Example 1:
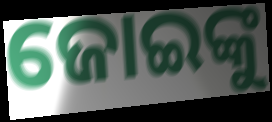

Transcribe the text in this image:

ଜୋଇଙ୍କୁ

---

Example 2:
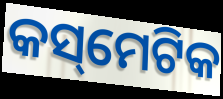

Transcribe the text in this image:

କସ୍‌ମେଟିକ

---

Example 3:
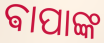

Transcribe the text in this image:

ଵାପାଙ୍କ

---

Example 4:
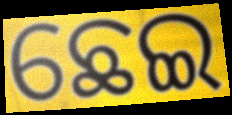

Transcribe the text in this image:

ଛେଇ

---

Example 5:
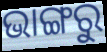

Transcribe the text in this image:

ଭାଙ୍ଗରୁ